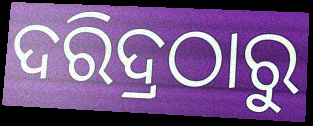
ଦରିଦ୍ରଠାରୁ